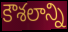
కౌశలాన్ని